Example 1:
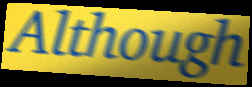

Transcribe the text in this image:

Although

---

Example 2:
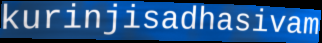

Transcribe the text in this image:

kurinjisadhasivam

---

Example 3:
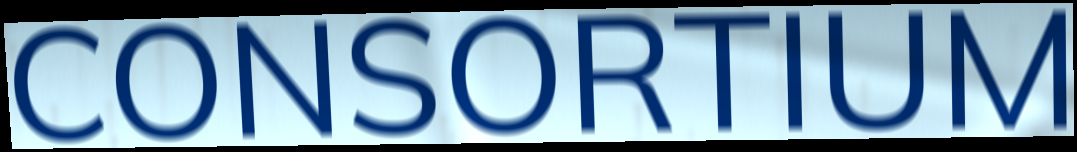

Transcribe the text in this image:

CONSORTIUM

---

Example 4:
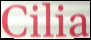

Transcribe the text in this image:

Cilia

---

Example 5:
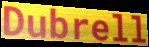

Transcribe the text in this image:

Dubrell